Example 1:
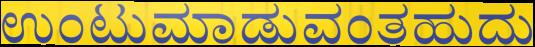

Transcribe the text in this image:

ಉಂಟುಮಾಡುವಂತಹುದು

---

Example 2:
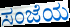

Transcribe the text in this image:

ಸಂಜೆಯ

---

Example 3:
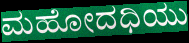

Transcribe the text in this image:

ಮಹೋದಧಿಯು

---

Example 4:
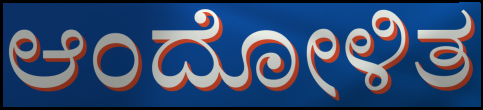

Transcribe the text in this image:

ಆಂದೋಳಿತ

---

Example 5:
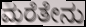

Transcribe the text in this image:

ಮರೆತೇನು